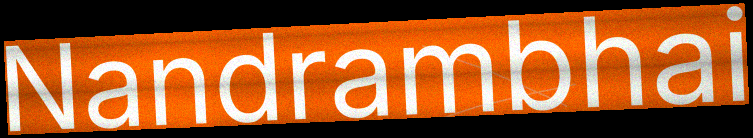
Nandrambhai